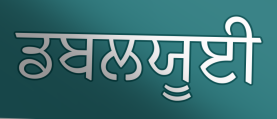
ਡਬਲਯੂਈ